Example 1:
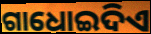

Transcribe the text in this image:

ଗାଧୋଇଦିଏ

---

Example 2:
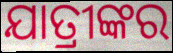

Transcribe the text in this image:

ଯାତ୍ରୀଙ୍କର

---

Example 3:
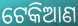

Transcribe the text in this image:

ଟେକିଆଣ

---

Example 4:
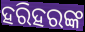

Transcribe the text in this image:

ହରିହରଙ୍କ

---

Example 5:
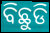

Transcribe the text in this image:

ବିଛୁଡି